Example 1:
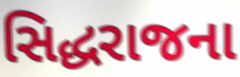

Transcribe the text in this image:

સિદ્ધરાજના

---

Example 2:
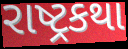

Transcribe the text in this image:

રાષ્ટ્રકથા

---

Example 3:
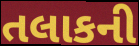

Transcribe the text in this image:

તલાકની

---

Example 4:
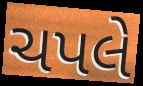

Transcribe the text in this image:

ચપલે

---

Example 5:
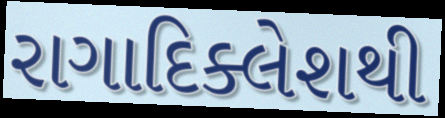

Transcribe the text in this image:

રાગાદિક્લેશથી